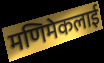
मणिमेकलाई